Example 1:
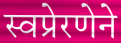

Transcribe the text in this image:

स्वप्रेरणेने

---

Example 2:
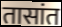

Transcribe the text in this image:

तासांत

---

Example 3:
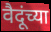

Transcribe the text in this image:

वैदूंच्या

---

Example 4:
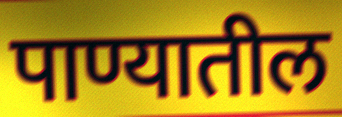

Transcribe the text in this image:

पाण्यातील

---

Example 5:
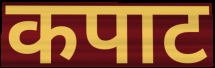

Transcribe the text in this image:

कपाट